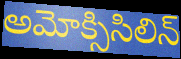
అమోక్సిసిలిన్